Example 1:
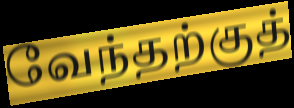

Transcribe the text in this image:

வேந்தற்குத்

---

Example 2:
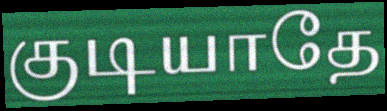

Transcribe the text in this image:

குடியாதே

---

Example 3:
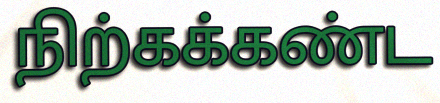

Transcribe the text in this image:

நிற்கக்கண்ட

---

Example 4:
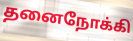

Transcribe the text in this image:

தனைநோக்கி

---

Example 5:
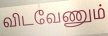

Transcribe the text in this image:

விடவேணும்